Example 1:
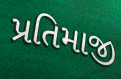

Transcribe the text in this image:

પ્રતિમાજી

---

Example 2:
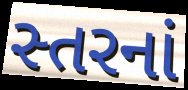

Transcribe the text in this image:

સ્તરનાં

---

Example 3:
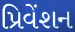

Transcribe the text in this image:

પ્રિવેંશન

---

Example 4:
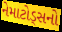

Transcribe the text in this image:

નેમાટોડ્સનો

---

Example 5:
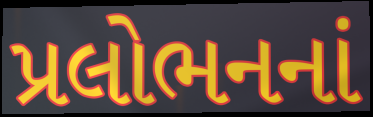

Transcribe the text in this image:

પ્રલોભનનાં